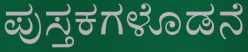
ಪುಸ್ತಕಗಳೊಡನೆ